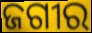
ଜଗୀର